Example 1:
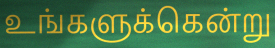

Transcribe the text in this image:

உங்களுக்கென்று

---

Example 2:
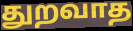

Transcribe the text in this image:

துறவாத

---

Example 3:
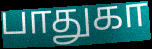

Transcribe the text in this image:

பாதுகா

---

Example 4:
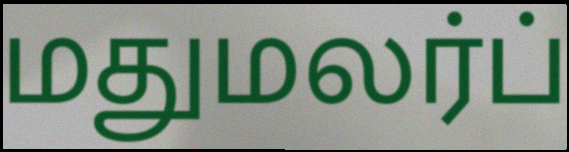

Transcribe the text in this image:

மதுமலர்ப்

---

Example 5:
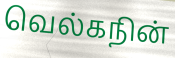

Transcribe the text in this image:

வெல்கநின்